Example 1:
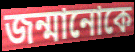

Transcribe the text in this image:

জন্মানোকে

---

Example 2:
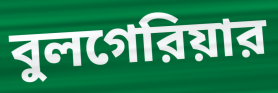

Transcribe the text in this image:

বুলগেরিয়ার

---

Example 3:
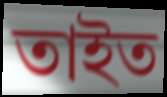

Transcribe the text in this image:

তাইত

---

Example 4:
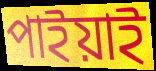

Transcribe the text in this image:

পাইয়াই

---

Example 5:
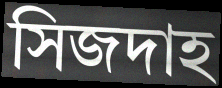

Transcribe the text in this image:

সিজদাহ